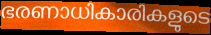
ഭരണാധികാരികളുടെ